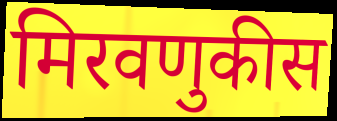
मिरवणुकीस